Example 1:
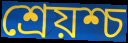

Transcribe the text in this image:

শ্রেয়শ্চ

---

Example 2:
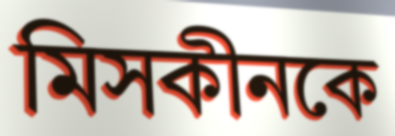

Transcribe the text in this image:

মিসকীনকে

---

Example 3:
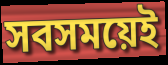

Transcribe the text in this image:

সবসময়েই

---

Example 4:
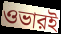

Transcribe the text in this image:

ওভারই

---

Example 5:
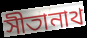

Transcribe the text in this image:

সীতানাথ